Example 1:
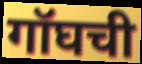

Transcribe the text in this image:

गॉघची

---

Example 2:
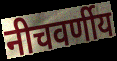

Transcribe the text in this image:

नीचवर्णीय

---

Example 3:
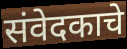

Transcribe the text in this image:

संवेदकाचे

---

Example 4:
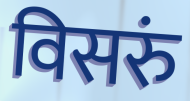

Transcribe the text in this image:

विसरुं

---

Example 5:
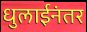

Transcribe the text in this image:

धुलाईनंतर